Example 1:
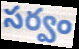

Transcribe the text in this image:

సర్వం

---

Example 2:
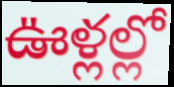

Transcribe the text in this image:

ఊళ్లల్లో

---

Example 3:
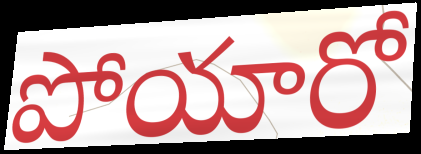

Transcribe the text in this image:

పోయారో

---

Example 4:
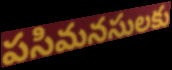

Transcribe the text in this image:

పసిమనసులకు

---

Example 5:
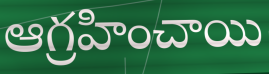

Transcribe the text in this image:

ఆగ్రహించాయి